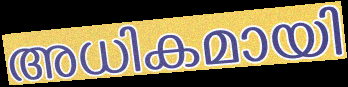
അധികമായി